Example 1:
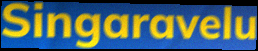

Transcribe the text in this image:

Singaravelu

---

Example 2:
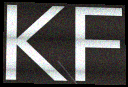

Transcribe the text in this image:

KF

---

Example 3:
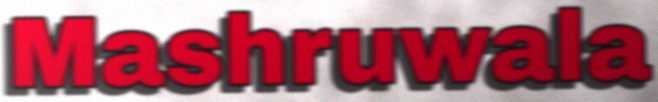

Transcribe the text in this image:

Mashruwala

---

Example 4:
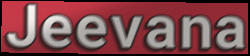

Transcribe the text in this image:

Jeevana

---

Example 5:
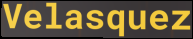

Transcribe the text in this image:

Velasquez